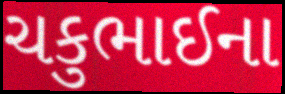
ચકુભાઈના